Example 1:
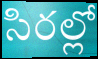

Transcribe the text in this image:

సిరల్లో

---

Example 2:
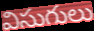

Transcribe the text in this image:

విసుగులు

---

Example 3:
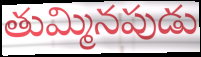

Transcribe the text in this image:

తుమ్మినపుడు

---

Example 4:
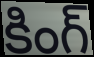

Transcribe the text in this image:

కింగ్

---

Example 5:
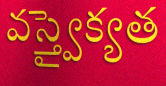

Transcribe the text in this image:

వస్త్వైక్యత